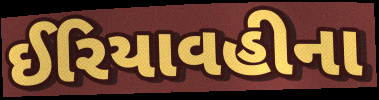
ઈરિયાવહીના